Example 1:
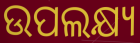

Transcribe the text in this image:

ଉପଲକ୍ଷ୍ୟ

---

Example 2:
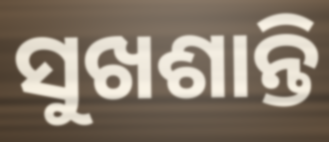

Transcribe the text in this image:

ସୁଖଶାନ୍ତି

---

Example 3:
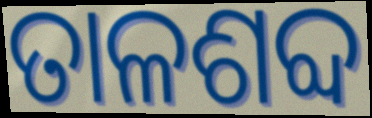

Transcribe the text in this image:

ତାଳଶବ୍ଦ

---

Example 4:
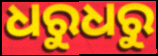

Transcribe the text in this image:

ଧରୁଧରୁ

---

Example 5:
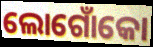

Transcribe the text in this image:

ଲୋଗୋଁକୋ